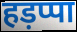
हड़प्पा